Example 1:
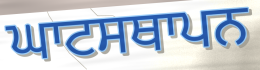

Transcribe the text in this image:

ਘਾਟਸਥਾਪਨ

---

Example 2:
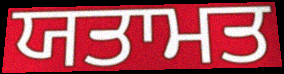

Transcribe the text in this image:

ਯਤਾਮਤ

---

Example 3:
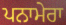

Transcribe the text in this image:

ਪਨਾਮੇਰਾ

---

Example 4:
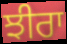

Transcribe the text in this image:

ਝੀਰਾ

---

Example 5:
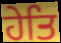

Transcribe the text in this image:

ਹੇਤਿ